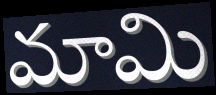
మామి